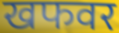
खफवर